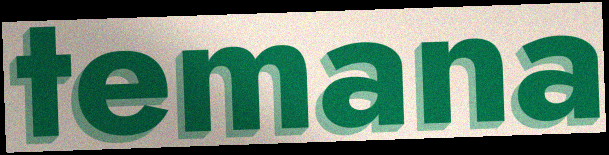
temana